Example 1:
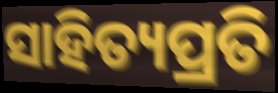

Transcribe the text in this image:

ସାହିତ୍ୟପ୍ରତି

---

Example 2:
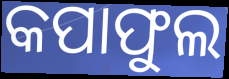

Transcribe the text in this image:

କପାଫୁଲ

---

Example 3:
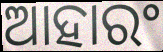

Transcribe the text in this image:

ଆହାରଂ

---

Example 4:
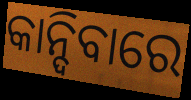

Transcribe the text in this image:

କାନ୍ଦିବାରେ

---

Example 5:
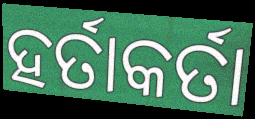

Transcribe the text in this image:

ହର୍ତାକର୍ତା